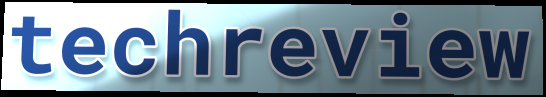
techreview